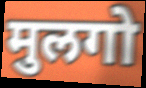
मुलगो